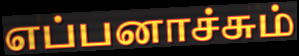
எப்பனாச்சும்